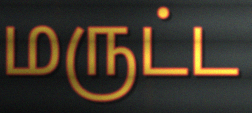
மருட்ட